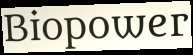
Biopower